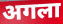
अगला